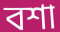
বশা